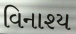
વિનાશ્ય